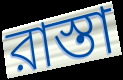
রাস্তা